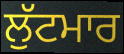
ਲੁੱਟਮਾਰ